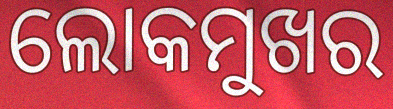
ଲୋକମୁଖର